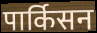
पार्किसन